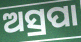
ଅସ୍ରପା